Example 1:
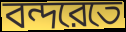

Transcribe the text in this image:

বন্দরেতে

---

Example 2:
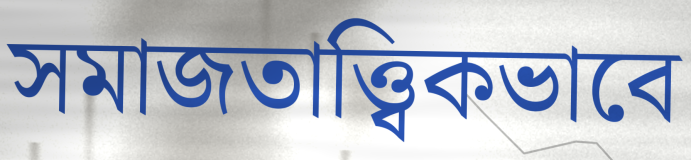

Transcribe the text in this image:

সমাজতাত্ত্বিকভাবে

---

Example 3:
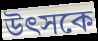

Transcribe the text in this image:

উৎসকে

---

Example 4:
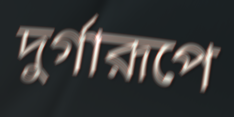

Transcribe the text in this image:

দুর্গারূপে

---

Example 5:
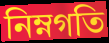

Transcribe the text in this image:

নিম্নগতি